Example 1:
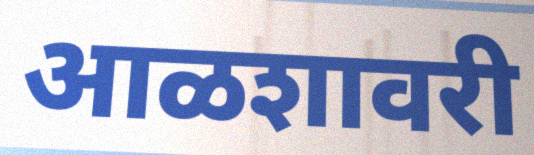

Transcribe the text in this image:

आळशावरी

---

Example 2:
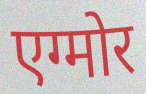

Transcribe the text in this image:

एग्मोर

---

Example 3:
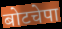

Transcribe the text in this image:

बोटचेपा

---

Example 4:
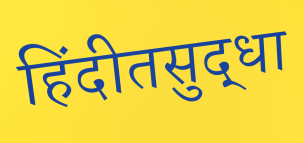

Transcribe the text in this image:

हिंदीतसुद्धा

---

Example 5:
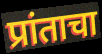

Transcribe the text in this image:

प्रांताचा